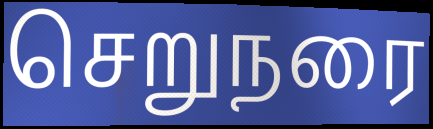
செறுநரை